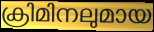
ക്രിമിനലുമായ